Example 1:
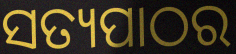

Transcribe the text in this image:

ସତ୍ୟପାଠର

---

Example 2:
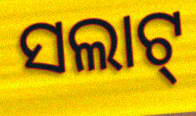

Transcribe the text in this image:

ସଲାଟ୍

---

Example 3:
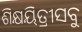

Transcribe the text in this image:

ଶିକ୍ଷୟିତ୍ରୀସବୁ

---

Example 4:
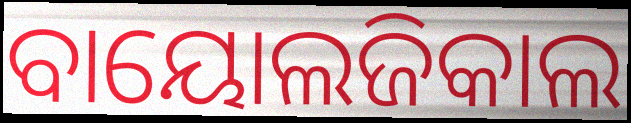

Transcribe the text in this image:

ବାୟୋଲଜିକାଲ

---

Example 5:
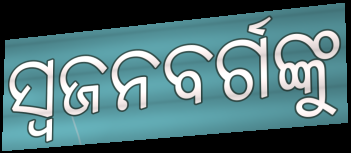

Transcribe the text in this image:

ସ୍ୱଜନବର୍ଗଙ୍କୁ